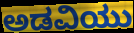
ಅಡವಿಯು